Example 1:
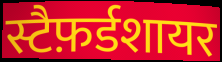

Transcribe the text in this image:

स्टैफ़र्डशायर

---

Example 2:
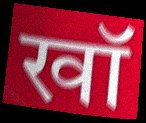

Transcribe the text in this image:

खॉ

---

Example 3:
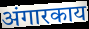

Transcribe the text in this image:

अंगारकाय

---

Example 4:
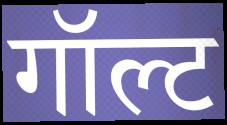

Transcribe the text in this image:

गॉल्ट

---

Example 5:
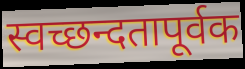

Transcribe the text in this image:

स्वच्छन्दतापूर्वक